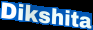
Dikshita